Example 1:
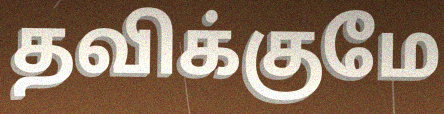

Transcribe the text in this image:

தவிக்குமே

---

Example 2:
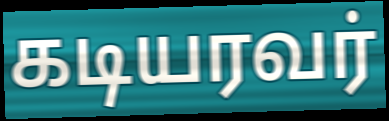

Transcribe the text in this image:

கடியரவர்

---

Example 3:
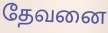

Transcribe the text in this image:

தேவனை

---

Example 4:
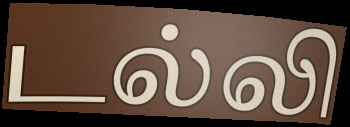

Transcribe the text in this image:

டல்லி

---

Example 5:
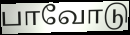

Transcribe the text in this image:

பாவோடு